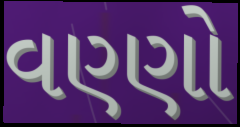
વણ્ણો